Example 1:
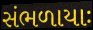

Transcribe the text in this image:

સંભળાયાઃ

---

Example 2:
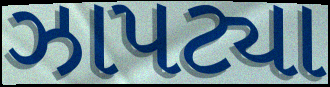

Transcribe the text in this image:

ઝાપટ્યા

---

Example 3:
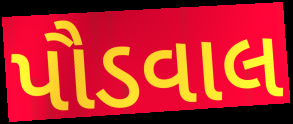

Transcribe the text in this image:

પૌડવાલ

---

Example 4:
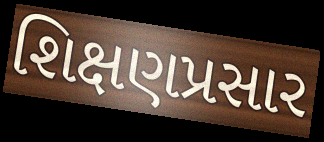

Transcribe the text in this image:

શિક્ષણપ્રસાર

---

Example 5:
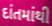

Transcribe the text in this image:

દાંતમાંથી